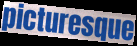
picturesque